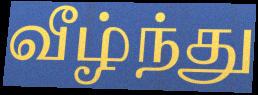
வீழ்ந்து